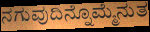
ನಗುವುದಿನ್ನೊಮ್ಮೆನುತ